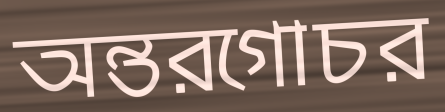
অন্তরগোচর